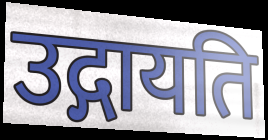
उद्गायति